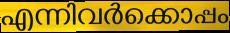
എന്നിവർക്കൊപ്പം